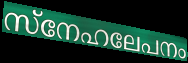
സ്നേഹലേപനം